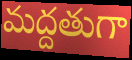
మద్దతుగా